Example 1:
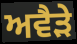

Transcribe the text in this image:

ਅਵੈੜੇ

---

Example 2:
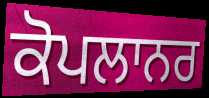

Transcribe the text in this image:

ਕੋਪਲਾਨਰ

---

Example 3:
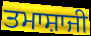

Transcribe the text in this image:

ਤਮਾਸ਼ਾਜੀ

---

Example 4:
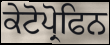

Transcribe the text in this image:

ਕੇਟੋਪ੍ਰੋਫਿਨ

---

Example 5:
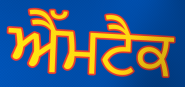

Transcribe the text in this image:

ਐੱਮਟੈਕ